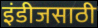
इंडीजसाठी